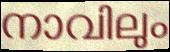
നാവിലും